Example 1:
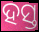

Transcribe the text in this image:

ହସ୍ତ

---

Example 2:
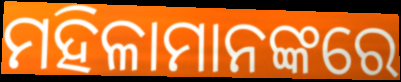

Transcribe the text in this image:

ମହିଳାମାନଙ୍କରେ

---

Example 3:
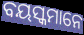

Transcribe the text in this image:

ବୟସ୍କମାନେ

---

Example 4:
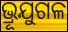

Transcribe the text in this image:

ଭ୍ରୂଯୁଗଳ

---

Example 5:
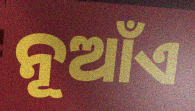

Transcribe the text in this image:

ନୂଆଁଏ